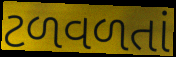
ટળવળતાં